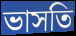
ভাসতি